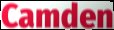
Camden